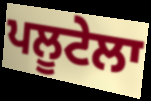
ਪਲੂਟੇਲਾ